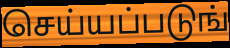
செய்யப்படுங்